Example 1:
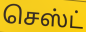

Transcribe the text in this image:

செஸ்ட்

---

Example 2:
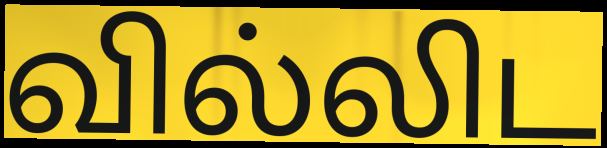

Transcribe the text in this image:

வில்லிட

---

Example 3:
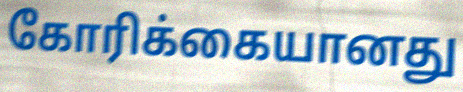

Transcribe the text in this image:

கோரிக்கையானது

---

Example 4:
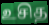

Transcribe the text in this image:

உசித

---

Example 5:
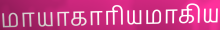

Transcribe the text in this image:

மாயாகாரியமாகிய